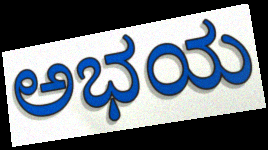
ಅಭಯ